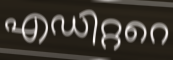
എഡിറ്ററെ